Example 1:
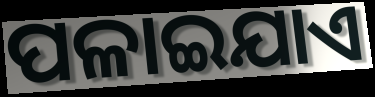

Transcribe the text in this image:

ପଳାଇଯାଏ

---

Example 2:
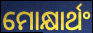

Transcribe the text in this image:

ମୋକ୍ଷାର୍ଥଂ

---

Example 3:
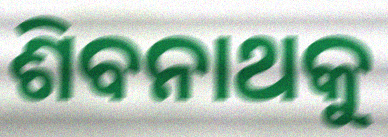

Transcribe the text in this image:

ଶିବନାଥକୁ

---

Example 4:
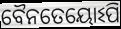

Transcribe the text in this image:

ବୈନତେୟୋଽପି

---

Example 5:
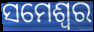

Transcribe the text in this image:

ସମେଶ୍ୱର